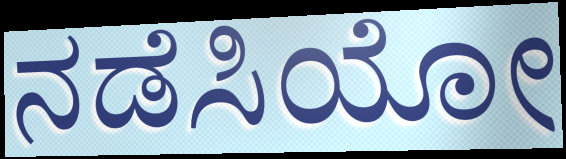
ನಡೆಸಿಯೋ